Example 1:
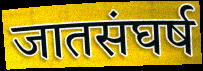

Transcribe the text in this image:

जातसंघर्ष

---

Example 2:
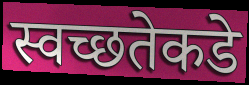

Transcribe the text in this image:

स्वच्छतेकडे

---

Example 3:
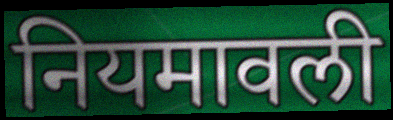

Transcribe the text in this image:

नियमावली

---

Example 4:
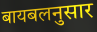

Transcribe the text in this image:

बायबलनुसार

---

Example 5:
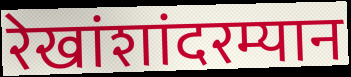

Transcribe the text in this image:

रेखांशांदरम्यान